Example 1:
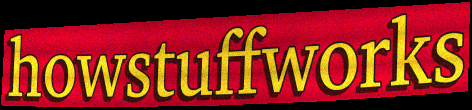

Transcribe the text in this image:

howstuffworks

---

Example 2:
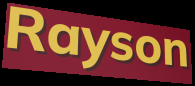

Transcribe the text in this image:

Rayson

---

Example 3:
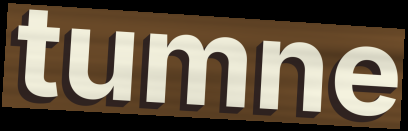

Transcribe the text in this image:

tumne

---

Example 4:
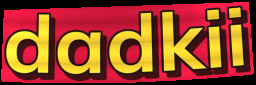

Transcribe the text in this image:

dadkii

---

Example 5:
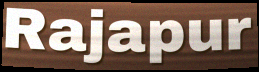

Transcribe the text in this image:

Rajapur